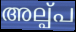
അല്പ്പ